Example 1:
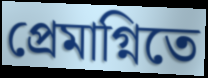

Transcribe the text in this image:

প্রেমাগ্নিতে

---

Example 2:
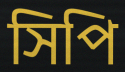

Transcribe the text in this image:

সিপি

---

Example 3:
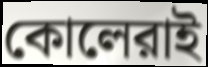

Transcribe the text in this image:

কোলেরাই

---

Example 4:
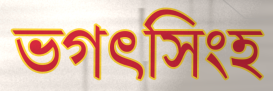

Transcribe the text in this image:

ভগৎসিংহ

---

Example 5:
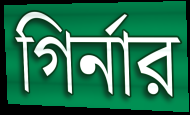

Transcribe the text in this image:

গির্নার